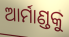
ଆର୍ମାଣ୍ଡକୁ